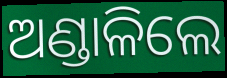
ଅଣ୍ଡାଳିଲେ